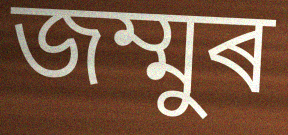
জম্মুৰ